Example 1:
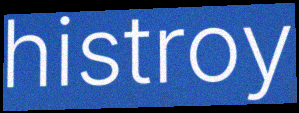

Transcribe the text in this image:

histroy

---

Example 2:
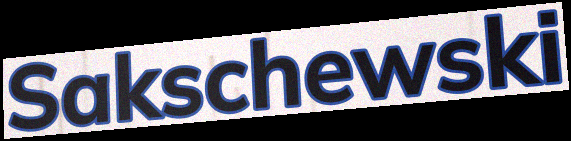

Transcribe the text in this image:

Sakschewski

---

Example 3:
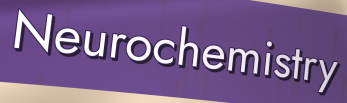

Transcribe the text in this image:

Neurochemistry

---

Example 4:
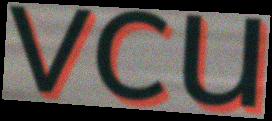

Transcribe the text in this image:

vcu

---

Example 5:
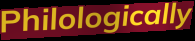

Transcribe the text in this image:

Philologically